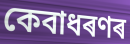
কেবাধৰণৰ